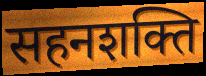
सहनशक्ति